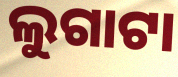
ଲୁଗାଟା